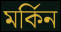
মর্কিন